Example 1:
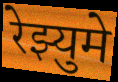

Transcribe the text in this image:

रेझ्युमे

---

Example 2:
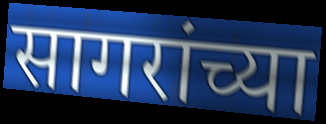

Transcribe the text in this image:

सागरांच्या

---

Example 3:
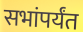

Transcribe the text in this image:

सभांपर्यंत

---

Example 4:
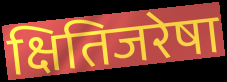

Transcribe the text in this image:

क्षितिजरेषा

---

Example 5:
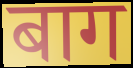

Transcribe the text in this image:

बाग